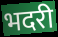
भदरी